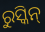
ରୁସ୍କିନ୍